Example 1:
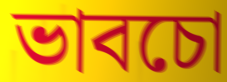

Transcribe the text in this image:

ভাবচো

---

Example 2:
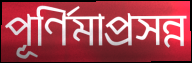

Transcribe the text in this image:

পূর্ণিমাপ্রসন্ন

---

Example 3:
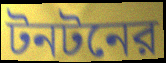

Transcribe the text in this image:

টনটনের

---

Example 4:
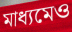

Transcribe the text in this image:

মাধ্যমেও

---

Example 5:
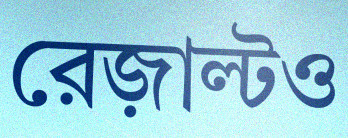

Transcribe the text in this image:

রেজ়াল্টও